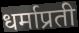
धर्माप्रती